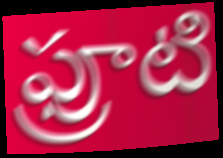
ఫ్రూటి